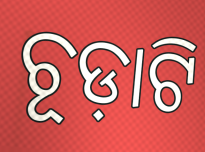
ଚୂଡ଼ାଟି